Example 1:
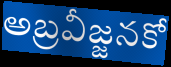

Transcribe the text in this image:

అబ్రవీజ్జనకో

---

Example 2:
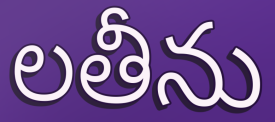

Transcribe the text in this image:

లతీను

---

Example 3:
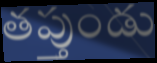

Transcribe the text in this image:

తప్తుండు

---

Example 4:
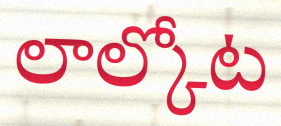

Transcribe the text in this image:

లాల్కోట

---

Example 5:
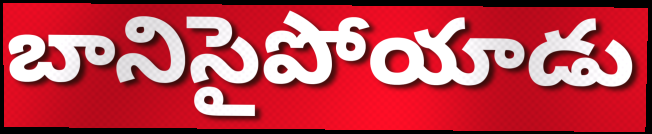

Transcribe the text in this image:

బానిసైపోయాడు